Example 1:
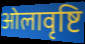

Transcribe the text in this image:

ओलावृष्टि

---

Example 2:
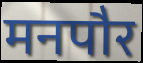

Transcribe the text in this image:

मनपौर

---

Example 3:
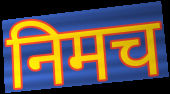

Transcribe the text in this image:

निमच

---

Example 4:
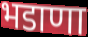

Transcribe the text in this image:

भडाणा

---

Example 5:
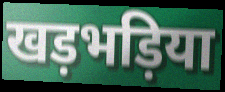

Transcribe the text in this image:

खड़भड़िया